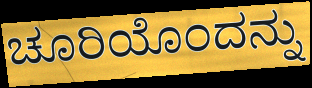
ಚೂರಿಯೊಂದನ್ನು